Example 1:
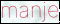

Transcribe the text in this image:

manje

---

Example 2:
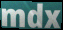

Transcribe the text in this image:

mdx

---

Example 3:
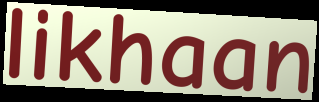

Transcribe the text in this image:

likhaan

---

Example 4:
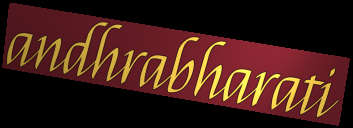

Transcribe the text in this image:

andhrabharati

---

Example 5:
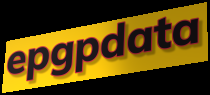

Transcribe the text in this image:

epgpdata